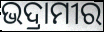
ଭଦ୍ରାମୀର